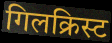
गिलक्रिस्‍ट